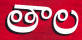
తాల